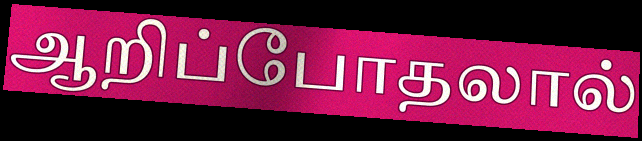
ஆறிப்போதலால்